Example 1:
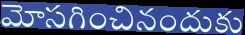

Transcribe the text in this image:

మోసగించినందుకు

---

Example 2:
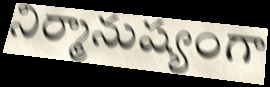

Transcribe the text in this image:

నిర్మానుష్యంగా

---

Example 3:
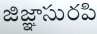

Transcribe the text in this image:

జిజ్ఞాసురపి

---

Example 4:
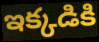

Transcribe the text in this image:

ఇక్కడికి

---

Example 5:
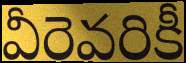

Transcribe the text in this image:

వీరెవరికీ